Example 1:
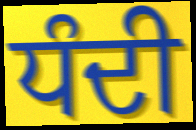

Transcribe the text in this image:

ਧੰਦੀ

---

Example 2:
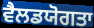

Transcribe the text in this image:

ਵੈਲਡਯੋਗਤਾ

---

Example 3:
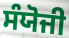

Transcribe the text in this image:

ਸੰਯੋਜੀ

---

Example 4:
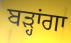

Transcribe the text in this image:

ਬੜ੍ਹਾਂਗਾ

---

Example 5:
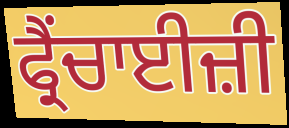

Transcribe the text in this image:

ਫ੍ਰੈਂਚਾਈਜ਼ੀ